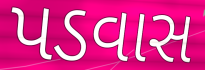
પડવાસ